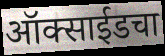
ऑक्साईडचा